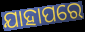
ଯାହାପରେ